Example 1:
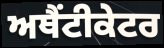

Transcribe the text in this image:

ਅਥੈਂਟੀਕੇਟਰ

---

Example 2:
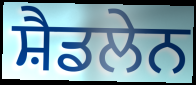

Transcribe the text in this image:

ਸ਼ੈਡਲੇਨ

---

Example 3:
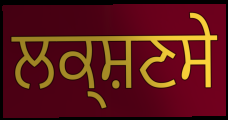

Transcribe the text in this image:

ਲਕ੍ਸ਼ਣਸੇ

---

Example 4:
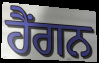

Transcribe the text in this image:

ਹੈਂਗਨ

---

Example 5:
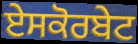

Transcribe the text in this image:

ਏਸਕੋਰਬੇਟ